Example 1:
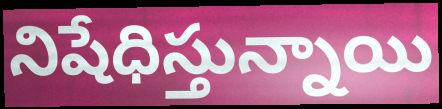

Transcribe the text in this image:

నిషేధిస్తున్నాయి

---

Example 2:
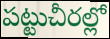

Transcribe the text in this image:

పట్టుచీరల్లో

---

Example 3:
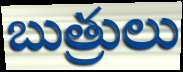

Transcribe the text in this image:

బుత్రులు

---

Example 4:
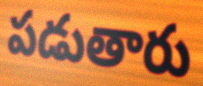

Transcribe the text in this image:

పడుతారు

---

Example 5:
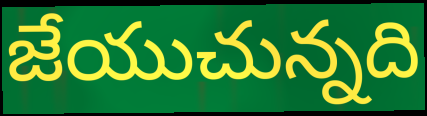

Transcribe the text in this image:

జేయుచున్నది